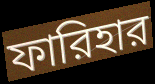
ফারিহার